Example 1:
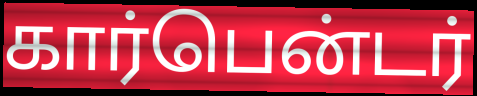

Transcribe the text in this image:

கார்பென்டர்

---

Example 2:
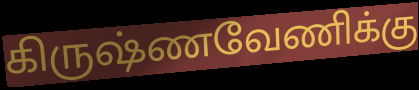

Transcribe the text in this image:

கிருஷ்ணவேணிக்கு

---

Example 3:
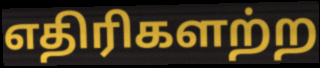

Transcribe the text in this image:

எதிரிகளற்ற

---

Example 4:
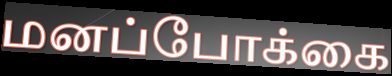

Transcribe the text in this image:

மனப்போக்கை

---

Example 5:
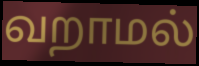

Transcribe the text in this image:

வறாமல்